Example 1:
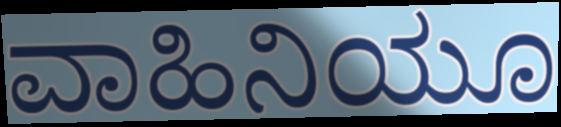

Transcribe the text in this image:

ವಾಹಿನಿಯೂ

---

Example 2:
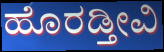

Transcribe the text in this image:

ಹೊರಡ್ತೀವಿ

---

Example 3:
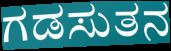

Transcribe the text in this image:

ಗಡಸುತನ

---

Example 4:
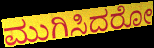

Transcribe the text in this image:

ಮುಗಿಸಿದರೋ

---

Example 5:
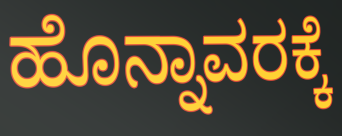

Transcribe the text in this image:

ಹೊನ್ನಾವರಕ್ಕೆ